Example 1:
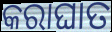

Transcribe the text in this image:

କରାଘାତ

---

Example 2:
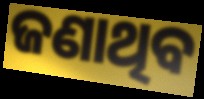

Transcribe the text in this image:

ଜଣାଥିବ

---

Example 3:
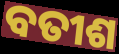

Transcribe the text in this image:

ବତୀଶ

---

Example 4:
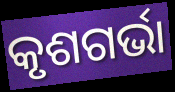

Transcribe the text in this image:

କୃଶଗର୍ଭା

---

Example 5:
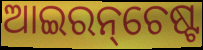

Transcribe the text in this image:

ଆଇରନ୍‌ଚେଷ୍ଟ